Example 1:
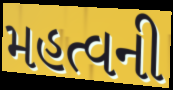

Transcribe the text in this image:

મહત્વની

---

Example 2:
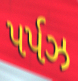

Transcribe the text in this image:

પર્પઝ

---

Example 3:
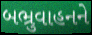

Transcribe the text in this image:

બભ્રુવાહનને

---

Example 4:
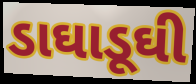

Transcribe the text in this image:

ડાઘાડૂઘી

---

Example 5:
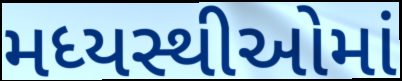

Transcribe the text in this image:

મધ્યસ્થીઓમાં